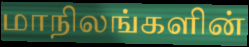
மாநிலங்களின்